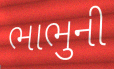
ભાભુની